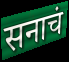
सनाचं